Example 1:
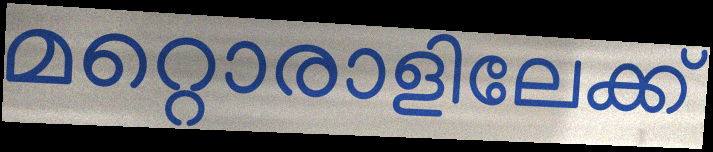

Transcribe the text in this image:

മറ്റൊരാളിലേക്ക്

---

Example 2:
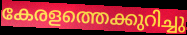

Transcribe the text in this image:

കേരളത്തെക്കുറിച്ചു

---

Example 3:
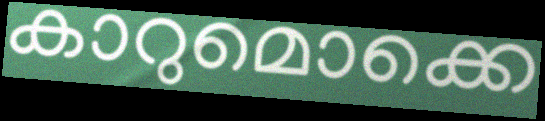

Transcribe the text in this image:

കാറുമൊക്കെ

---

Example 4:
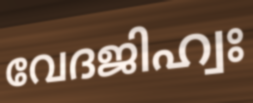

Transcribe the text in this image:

വേദജിഹ്വഃ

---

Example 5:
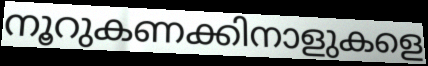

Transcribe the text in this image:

നൂറുകണക്കിനാളുകളെ